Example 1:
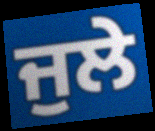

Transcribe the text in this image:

ਜੁਲੇ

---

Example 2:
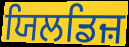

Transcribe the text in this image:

ਯਿਲਡਿਜ਼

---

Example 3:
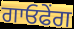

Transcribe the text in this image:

ਗਾਓਫੇਂਗ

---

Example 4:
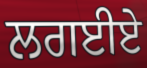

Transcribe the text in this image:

ਲਗਈਏ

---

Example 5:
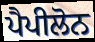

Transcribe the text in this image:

ਪੈਪੀਲੋਨ